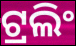
ଟ୍ରଲିଂ